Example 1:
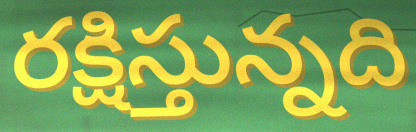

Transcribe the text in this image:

రక్షిస్తున్నది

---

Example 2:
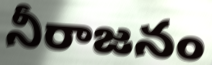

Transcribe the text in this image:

నీరాజనం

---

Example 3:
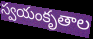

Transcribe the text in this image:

స్వయంకృతాల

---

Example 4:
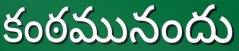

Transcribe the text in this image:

కంఠమునందు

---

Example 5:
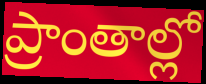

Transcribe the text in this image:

ప్రాంతాల్లో